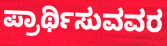
ಪ್ರಾರ್ಥಿಸುವವರ